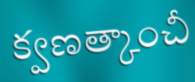
క్వణత్కాంచీ